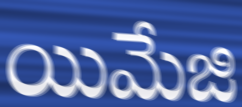
యిమేజి